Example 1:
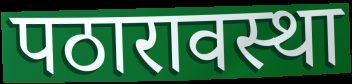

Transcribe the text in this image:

पठारावस्था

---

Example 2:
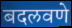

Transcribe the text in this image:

बदलवणे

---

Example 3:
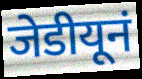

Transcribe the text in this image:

जेडीयूनं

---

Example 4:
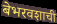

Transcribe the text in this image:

बेभरवशाची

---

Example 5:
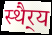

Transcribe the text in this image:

स्थैर्य